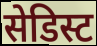
सेडिस्ट